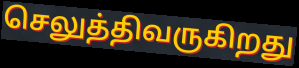
செலுத்திவருகிறது